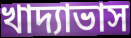
খাদ্যাভাস